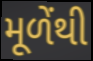
મૂળેંથી